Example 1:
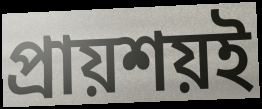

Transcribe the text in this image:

প্রায়শয়ই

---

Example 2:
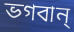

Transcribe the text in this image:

ভগবান্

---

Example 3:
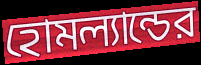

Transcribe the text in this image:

হোমল্যান্ডের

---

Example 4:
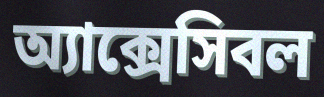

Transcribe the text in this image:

অ্যাক্সেসিবল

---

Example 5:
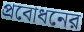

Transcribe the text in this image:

প্রবোধনের